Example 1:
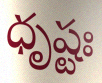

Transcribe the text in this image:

ధృష్టః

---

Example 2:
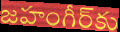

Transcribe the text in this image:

జహంగీర్‌కు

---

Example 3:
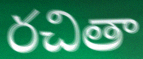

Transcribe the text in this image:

రచితా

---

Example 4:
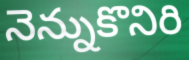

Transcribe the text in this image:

నెన్నుకొనిరి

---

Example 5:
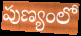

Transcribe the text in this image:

పుణ్యంలో